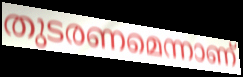
തുടരണമെന്നാണ്